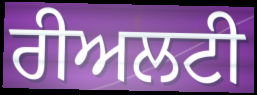
ਰੀਅਲਟੀ